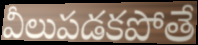
వీలుపడకపోతే